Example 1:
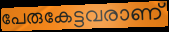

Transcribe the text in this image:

പേരുകേട്ടവരാണ്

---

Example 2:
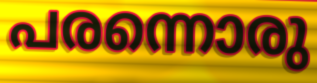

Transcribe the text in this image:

പരന്നൊരു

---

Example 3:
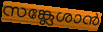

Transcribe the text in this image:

സങ്ക്ലേശാൻ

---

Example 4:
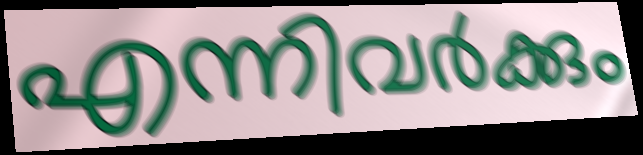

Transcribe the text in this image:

എന്നിവർക്കും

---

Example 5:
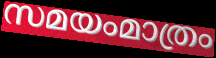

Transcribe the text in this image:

സമയംമാത്രം